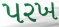
પરખ